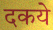
दकये